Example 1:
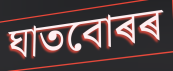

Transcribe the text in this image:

ঘাতবোৰৰ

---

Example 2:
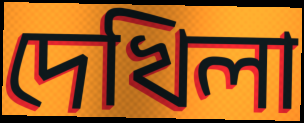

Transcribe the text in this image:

দেখিলা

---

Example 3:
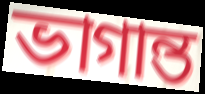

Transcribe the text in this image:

ভাগান্ত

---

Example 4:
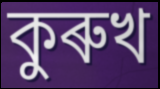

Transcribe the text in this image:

কুৰুখ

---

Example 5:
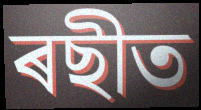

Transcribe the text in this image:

ৰছীত